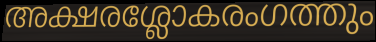
അക്ഷരശ്ലോകരംഗത്തും